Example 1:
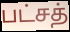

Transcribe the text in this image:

பட்சத்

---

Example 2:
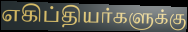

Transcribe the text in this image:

எகிப்தியர்களுக்கு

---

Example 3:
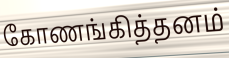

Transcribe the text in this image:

கோணங்கித்தனம்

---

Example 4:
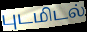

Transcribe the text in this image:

புடமிடல்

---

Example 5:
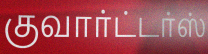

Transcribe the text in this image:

குவார்ட்டர்ஸ்